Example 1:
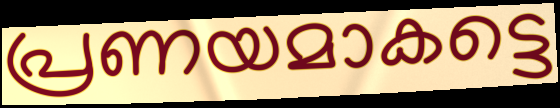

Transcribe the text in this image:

പ്രണയമാകട്ടെ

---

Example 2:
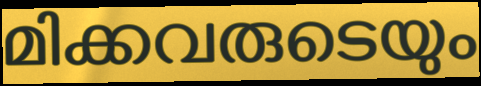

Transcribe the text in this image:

മിക്കവരുടെയും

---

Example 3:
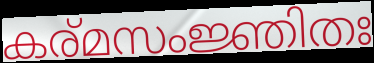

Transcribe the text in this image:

കര്മസംജ്ഞിതഃ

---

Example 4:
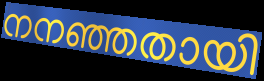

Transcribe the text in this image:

നനഞ്ഞതായി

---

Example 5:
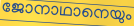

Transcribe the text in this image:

ജോനാഥാനെയും